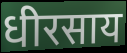
धीरसाय